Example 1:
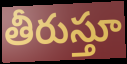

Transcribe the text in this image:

తీరుస్తూ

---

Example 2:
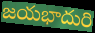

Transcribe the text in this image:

జయభాదురి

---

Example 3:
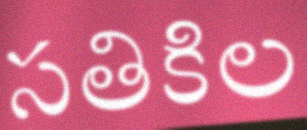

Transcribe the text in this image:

సతికిల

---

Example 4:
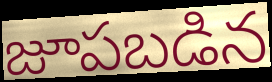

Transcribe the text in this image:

జూపబడిన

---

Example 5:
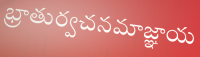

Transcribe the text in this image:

భ్రాతుర్వచనమాజ్ఞాయ